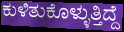
ಕುಳಿತುಕೊಳ್ಳುತ್ತಿದ್ದೆ